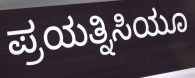
ಪ್ರಯತ್ನಿಸಿಯೂ